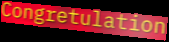
Congretulation